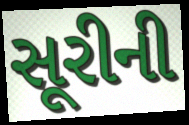
સૂરીની